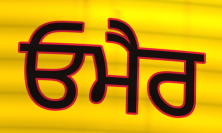
ਓਮੈਰ